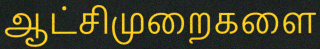
ஆட்சிமுறைகளை